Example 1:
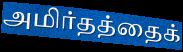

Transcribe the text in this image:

அமிர்தத்தைக்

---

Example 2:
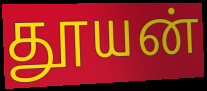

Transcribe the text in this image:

தூயன்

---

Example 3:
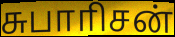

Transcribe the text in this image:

சுபாரிசன்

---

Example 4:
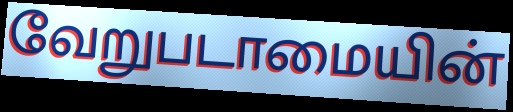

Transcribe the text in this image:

வேறுபடாமையின்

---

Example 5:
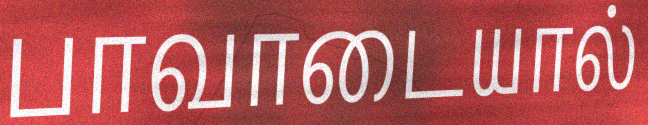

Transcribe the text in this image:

பாவாடையால்